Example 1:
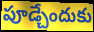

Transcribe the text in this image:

పూడ్చేందుకు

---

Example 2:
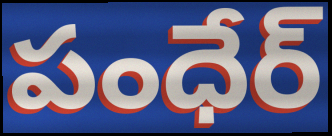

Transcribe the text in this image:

పంధేర్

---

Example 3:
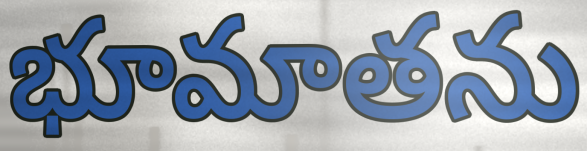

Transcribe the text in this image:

భూమాతను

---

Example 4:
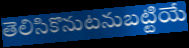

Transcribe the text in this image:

తెలిసికొనుటనుబట్టియే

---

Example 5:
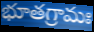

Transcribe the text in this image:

భూతగ్రామః